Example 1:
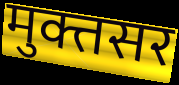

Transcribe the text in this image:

मुक्तसर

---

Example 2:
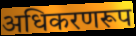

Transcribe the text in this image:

अधिकरणरूप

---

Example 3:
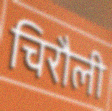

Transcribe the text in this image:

चिरौली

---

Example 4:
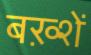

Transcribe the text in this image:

बख़्शें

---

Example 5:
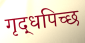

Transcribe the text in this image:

गृद्धपिच्छ